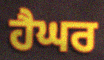
ਹੈਘਰ